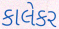
કાલેકર